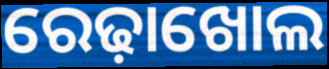
ରେଢ଼ାଖୋଲ